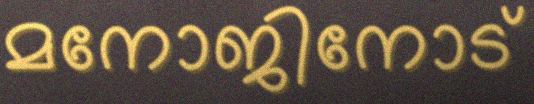
മനോജിനോട്